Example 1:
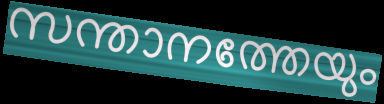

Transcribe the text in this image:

സന്താനത്തേയും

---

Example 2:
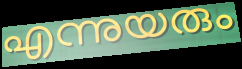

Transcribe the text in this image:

എന്നുയരും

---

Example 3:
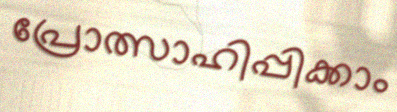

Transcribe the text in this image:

പ്രോത്സാഹിപ്പിക്കാം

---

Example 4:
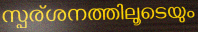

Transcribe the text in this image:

സ്പര്ശനത്തിലൂടെയും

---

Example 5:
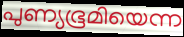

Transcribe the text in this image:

പുണ്യഭൂമിയെന്ന